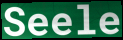
Seele